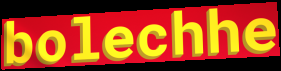
bolechhe